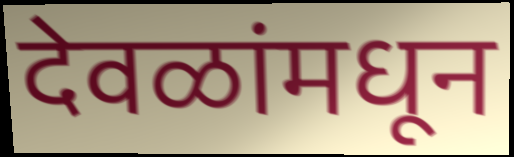
देवळांमधून